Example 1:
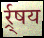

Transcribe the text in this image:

र्र्र्षय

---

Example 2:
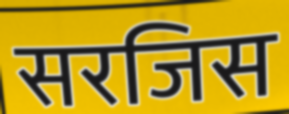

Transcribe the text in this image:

सरजिस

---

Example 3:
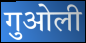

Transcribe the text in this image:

गुओली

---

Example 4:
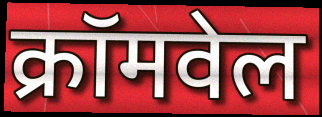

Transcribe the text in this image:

क्रॉमवेल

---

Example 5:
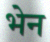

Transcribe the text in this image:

भेन